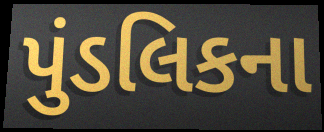
પુંડલિકના